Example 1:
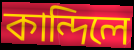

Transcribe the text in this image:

কান্দিলে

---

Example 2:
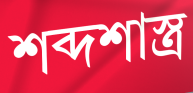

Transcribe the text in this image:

শব্দশাস্ত্র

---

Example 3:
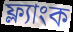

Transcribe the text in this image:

ফ্ল্যাংক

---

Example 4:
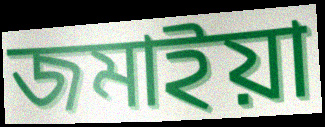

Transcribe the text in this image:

জমাইয়া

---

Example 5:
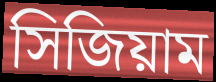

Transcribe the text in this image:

সিজিয়াম